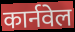
कार्नवेल